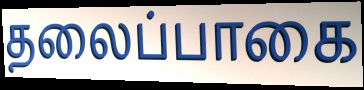
தலைப்பாகை